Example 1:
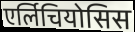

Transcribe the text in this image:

एर्लिचियोसिस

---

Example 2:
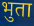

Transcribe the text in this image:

भुता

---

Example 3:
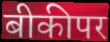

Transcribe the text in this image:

बीकीपर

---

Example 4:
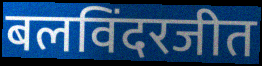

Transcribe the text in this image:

बलविंदरजीत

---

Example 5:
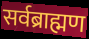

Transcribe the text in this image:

सर्वब्राह्मण